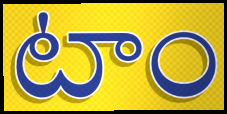
టాం